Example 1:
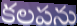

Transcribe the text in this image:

కలపను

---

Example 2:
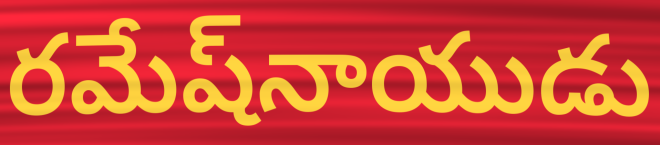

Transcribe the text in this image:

రమేష్‌నాయుడు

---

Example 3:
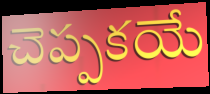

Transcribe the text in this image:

చెప్పకయే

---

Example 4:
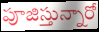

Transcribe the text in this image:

పూజిస్తున్నారో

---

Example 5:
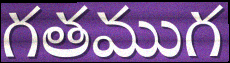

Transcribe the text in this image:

గతముగ